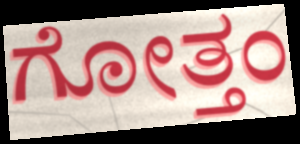
ಗೋತ್ತಂ